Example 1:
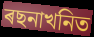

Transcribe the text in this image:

ৰছনাখনিত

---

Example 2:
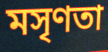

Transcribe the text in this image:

মসৃণতা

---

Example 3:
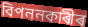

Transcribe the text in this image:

বিপননকাৰীৰ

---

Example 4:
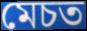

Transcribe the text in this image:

মেচত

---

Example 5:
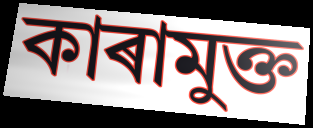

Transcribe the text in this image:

কাৰামুক্ত